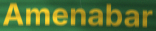
Amenabar